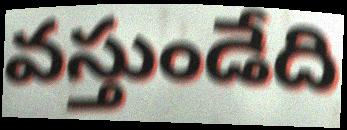
వస్తుండేది